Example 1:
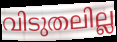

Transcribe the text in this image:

വിടുതലില്ല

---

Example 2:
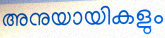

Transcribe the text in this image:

അനുയായികളും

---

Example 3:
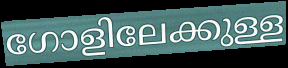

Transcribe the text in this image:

ഗോളിലേക്കുള്ള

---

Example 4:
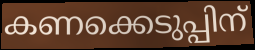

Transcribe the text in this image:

കണക്കെടുപ്പിന്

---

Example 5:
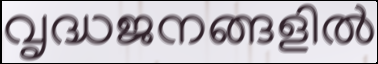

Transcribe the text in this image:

വൃദ്ധജനങ്ങളിൽ